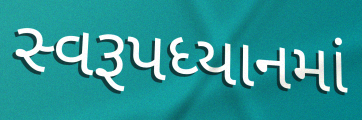
સ્વરૂપધ્યાનમાં